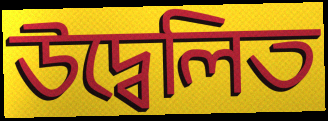
উদ্বেলিত